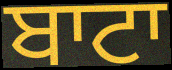
ਬਾਟਾ